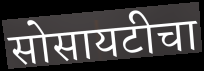
सोसायटीचा